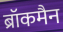
ब्रॉकमैन